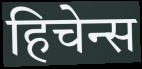
हिचेन्स